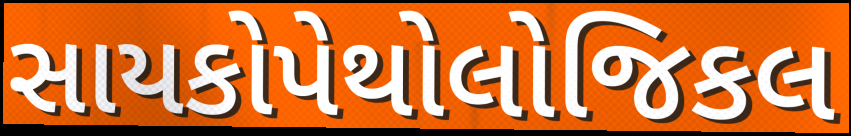
સાયકોપેથોલોજિકલ